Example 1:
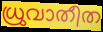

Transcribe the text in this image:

ധ്രുവാതീത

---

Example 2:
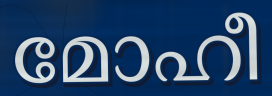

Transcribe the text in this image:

മോഹീ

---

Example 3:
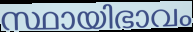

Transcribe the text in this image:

സ്ഥായിഭാവം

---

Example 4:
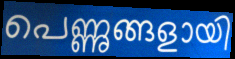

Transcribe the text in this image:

പെണ്ണുങ്ങളായി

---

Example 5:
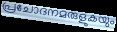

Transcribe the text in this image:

പ്രചോദനമരുളുകയും